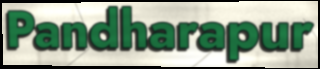
Pandharapur